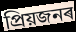
প্ৰিয়জনৰ